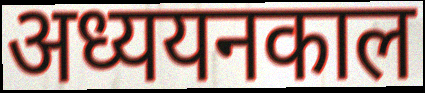
अध्ययनकाल